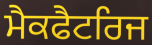
ਮੈਕਫੈਟਰਿਜ